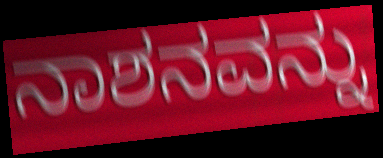
ನಾಶನವನ್ನು